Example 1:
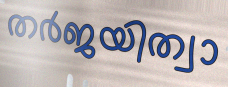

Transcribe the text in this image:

തർജയിത്വാ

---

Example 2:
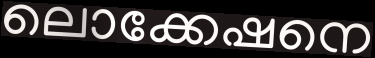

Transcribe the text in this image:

ലൊക്കേഷനെ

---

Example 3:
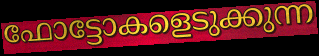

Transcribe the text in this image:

ഫോട്ടോകളെടുക്കുന്ന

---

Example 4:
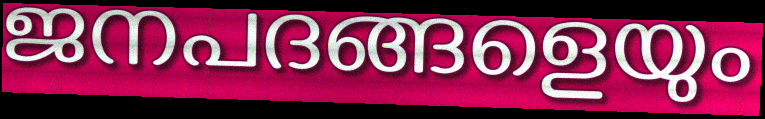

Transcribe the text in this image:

ജനപദങ്ങളെയും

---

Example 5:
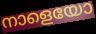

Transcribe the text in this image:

നാളെയോ